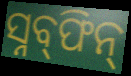
ସ୍ନବ୍‍ଫିନ୍